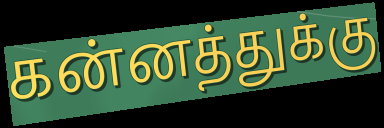
கன்னத்துக்கு